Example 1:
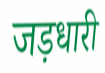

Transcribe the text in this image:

जड़धारी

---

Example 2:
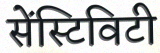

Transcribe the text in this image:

सेंस्टिविटी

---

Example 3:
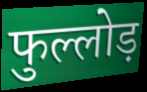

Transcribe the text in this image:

फुल्लोड़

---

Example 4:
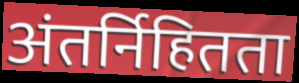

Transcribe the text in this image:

अंतर्निहितता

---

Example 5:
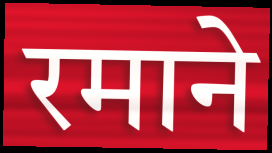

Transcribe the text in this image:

रमाने